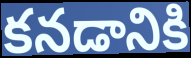
కనడానికి